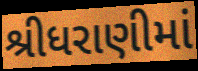
શ્રીધરાણીમાં